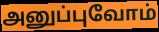
அனுப்புவோம்